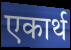
एकार्थ